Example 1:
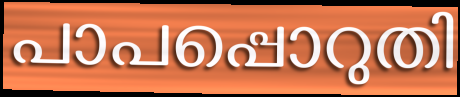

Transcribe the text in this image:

പാപപ്പൊറുതി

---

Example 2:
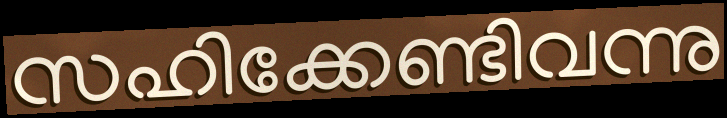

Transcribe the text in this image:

സഹിക്കേണ്ടിവന്നു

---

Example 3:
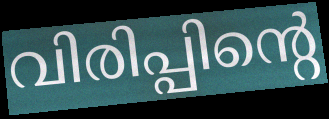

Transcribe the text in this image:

വിരിപ്പിന്റെ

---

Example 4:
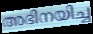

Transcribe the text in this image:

അഭിനയിച്ച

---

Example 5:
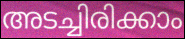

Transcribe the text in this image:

അടച്ചിരിക്കാം